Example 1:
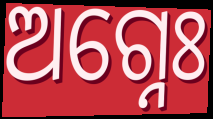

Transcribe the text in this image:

ଅଗ୍ନେଃ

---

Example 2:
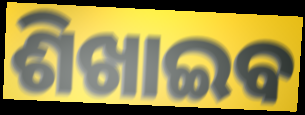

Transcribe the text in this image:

ଶିଖାଇବ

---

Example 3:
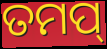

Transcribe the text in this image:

ତମପ୍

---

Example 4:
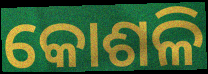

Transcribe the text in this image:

କୋଶଳି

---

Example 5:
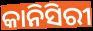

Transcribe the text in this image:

କାନିସିରୀ